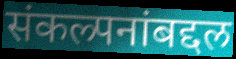
संकल्पनांबद्दल